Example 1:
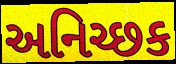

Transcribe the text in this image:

અનિચ્છક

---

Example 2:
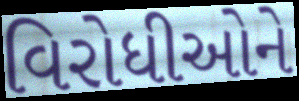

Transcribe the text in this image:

વિરોધીઓને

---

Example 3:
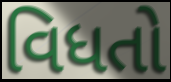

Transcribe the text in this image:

વિધતો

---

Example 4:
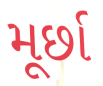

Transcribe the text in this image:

મૂર્છા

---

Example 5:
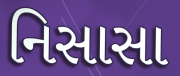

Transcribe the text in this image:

નિસાસા